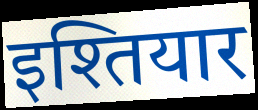
इश्तियार